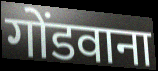
गोंडवाना